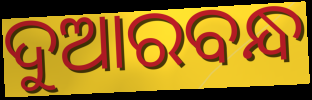
ଦୁଆରବନ୍ଧ